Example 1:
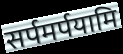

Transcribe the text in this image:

सर्पमर्पयामि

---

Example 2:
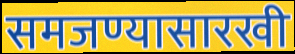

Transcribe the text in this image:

समजण्यासारखी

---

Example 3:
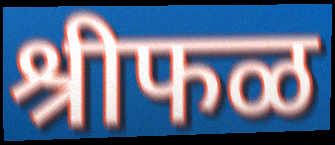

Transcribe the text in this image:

श्रीफळ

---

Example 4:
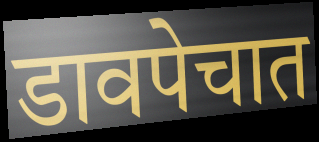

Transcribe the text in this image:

डावपेचात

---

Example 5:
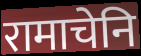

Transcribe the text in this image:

रामाचेनि